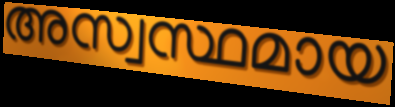
അസ്വസ്ഥമായ